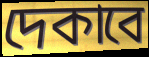
দেকাবে